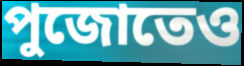
পুজোতেও